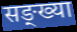
सङ्ख्या